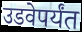
उडवेपर्यंत